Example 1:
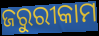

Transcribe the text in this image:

ଜରୁରୀକାମ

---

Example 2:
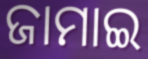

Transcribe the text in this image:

ଜାମାଇ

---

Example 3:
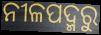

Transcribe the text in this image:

ନୀଳପଦ୍ମରୁ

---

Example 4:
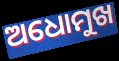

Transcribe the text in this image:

ଅଧୋମୁଖ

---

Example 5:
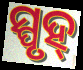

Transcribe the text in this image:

ସ୍ପୃହ୍